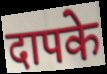
दापके